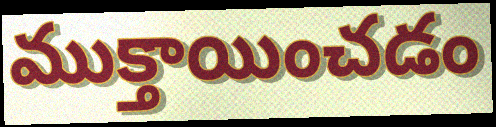
ముక్తాయించడం